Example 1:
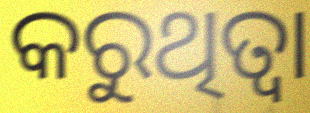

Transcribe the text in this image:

କରୁଥିତ୍ବା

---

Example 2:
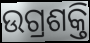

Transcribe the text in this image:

ଉଗ୍ରଶକ୍ତି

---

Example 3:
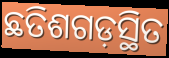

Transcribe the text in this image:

ଛତିଶଗଡ଼ସ୍ଥିତ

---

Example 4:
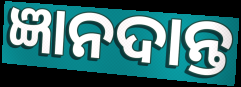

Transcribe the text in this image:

ଜ୍ଞାନଦାନ୍ତ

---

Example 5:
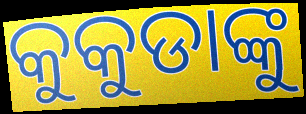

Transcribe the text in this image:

କୁକୁଡାଙ୍କୁ